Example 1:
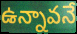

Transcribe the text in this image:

ఉన్నావనే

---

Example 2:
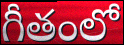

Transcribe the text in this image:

గీతంలో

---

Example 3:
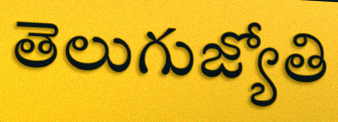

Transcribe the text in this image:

తెలుగుజ్యోతి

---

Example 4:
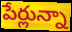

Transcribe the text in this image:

పేర్లున్నా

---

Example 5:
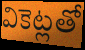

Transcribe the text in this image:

వికెట్లతో